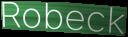
Robeck